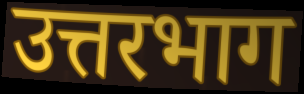
उत्तरभाग